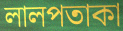
লালপতাকা